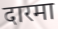
दारमा